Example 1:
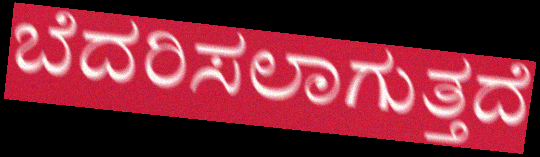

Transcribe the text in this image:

ಬೆದರಿಸಲಾಗುತ್ತದೆ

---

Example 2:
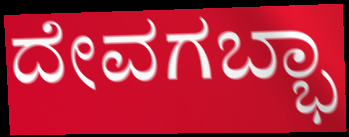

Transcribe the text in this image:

ದೇವಗಬ್ಭಾ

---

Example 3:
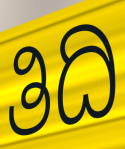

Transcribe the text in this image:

ತಿದಿ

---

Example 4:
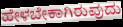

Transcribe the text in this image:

ಹೇಳಬೇಕಾಗಿರುವುದು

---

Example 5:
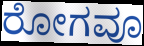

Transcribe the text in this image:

ರೋಗವೂ